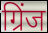
ग्रिंज